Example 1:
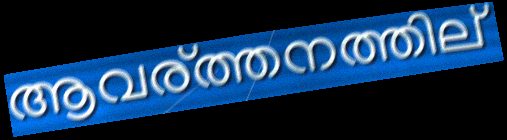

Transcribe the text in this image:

ആവര്ത്തനത്തില്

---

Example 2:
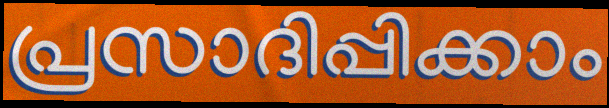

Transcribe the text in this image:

പ്രസാദിപ്പിക്കാം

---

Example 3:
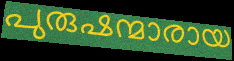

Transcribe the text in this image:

പുരുഷന്മാരായ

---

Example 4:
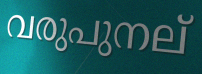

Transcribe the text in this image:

വരുപുനല്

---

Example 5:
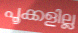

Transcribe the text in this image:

പൂക്കളില്ല